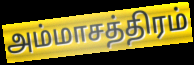
அம்மாசத்திரம்